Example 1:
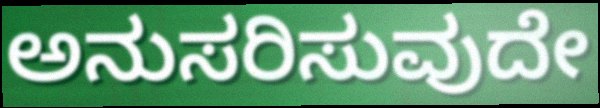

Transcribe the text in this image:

ಅನುಸರಿಸುವುದೇ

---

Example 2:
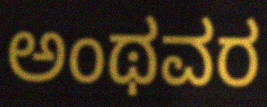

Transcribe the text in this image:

ಅಂಥವರ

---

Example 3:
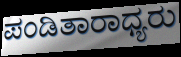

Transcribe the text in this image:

ಪಂಡಿತಾರಾಧ್ಯರು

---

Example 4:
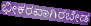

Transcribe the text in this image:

ಭೀಕರವಾಗಿರಬೇಡ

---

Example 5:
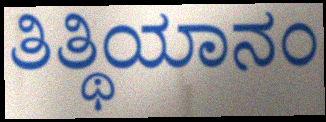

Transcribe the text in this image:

ತಿತ್ಥಿಯಾನಂ